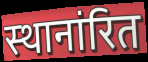
स्थानांरित